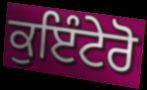
ਕੁਇੰਟੇਰੋ